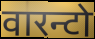
वारन्टो